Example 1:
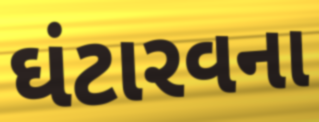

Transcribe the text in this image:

ઘંટારવના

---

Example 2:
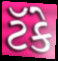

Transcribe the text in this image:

ટૅંકે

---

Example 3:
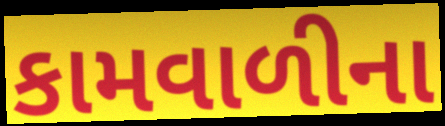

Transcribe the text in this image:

કામવાળીના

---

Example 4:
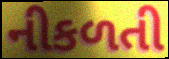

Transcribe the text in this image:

નીકળતી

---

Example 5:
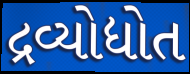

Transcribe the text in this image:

દ્રવ્યોદ્યોત